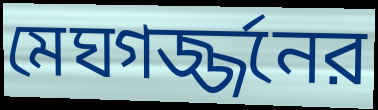
মেঘগর্জ্জনের